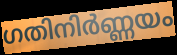
ഗതിനിർണ്ണയം